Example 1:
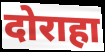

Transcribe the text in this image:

दोराहा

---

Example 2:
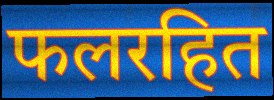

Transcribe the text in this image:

फलरहित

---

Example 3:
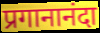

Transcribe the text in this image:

प्रगानानंदा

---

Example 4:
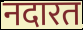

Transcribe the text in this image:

नदारत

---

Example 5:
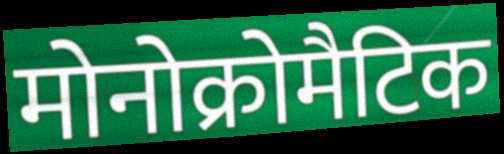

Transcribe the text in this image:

मोनोक्रोमैटिक